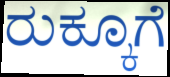
ರುಕ್ಕೂಗೆ